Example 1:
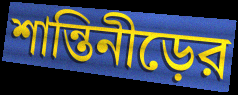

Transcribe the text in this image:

শান্তিনীড়ের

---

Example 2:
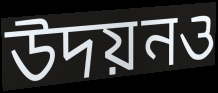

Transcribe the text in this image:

উদয়নও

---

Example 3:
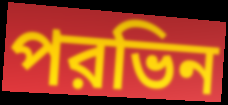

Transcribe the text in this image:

পরভিন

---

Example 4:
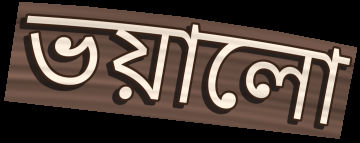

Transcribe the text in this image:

ভয়ালো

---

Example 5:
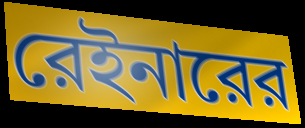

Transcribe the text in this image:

রেইনারের